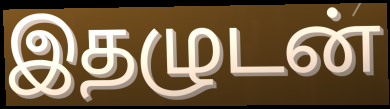
இதழுடன்